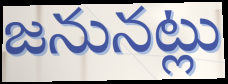
జనునట్లు